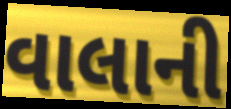
વાલાની